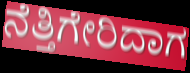
ನೆತ್ತಿಗೇರಿದಾಗ